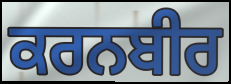
ਕਰਨਬੀਰ